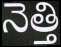
నెత్తి